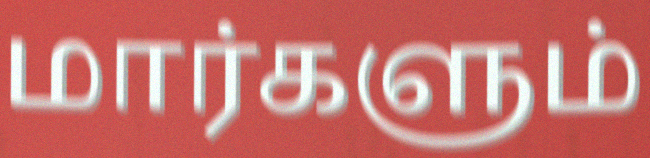
மார்களும்